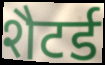
शैटर्ड